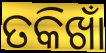
ତକିଖାଁ